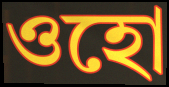
ওহো